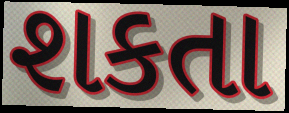
શકતા